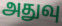
அதுவு